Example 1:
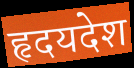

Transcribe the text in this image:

हृदयदेश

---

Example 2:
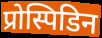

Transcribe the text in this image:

प्रोस्पिडिन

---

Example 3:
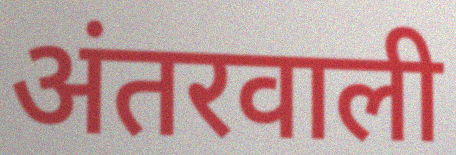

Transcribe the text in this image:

अंतरवाली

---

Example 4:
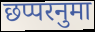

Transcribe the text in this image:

छप्परनुमा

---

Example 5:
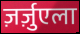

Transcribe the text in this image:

ज़र्ज़ुएला